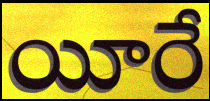
యీరే